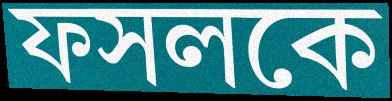
ফসলকে